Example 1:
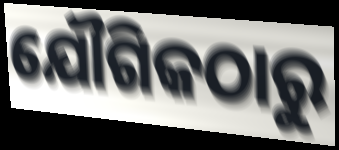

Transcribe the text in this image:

ଯୌଗିକଠାରୁ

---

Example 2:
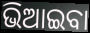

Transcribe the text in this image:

ଭିଆଇବା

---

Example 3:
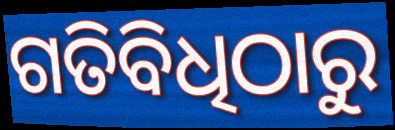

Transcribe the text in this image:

ଗତିବିଧିଠାରୁ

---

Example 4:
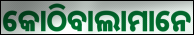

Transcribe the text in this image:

କୋଠିବାଲାମାନେ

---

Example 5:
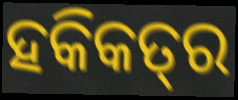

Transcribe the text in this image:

ହକିକତ୍‌ର